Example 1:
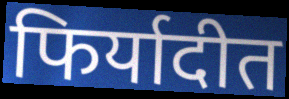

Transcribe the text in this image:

फिर्यादीत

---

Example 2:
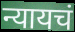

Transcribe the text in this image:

न्यायचं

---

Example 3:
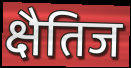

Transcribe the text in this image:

क्षैतिज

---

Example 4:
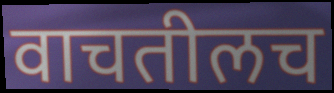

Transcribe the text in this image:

वाचतीलच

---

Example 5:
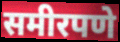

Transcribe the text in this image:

समीरपणे